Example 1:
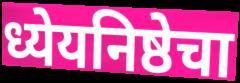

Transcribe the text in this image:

ध्येयनिष्ठेचा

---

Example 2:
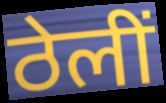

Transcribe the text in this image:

ठेलीं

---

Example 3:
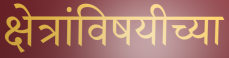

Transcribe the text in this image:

क्षेत्रांविषयीच्या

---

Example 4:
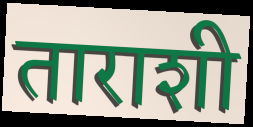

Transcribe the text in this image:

ताराशी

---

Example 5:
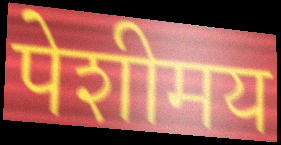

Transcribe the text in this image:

पेशीमय